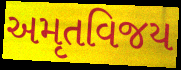
અમૃતવિજય